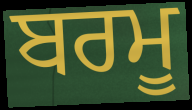
ਬਰਮੂ